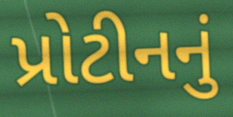
પ્રોટીનનું